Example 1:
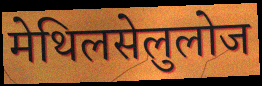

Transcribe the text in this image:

मेथिलसेलुलोज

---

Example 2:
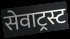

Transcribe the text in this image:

सेवाट्रस्ट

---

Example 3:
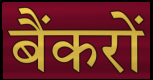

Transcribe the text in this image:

बैंकरों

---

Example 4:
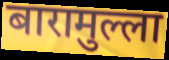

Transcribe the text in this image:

बारामुल्‍ला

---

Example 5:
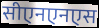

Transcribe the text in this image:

सीएनएनएस